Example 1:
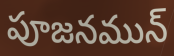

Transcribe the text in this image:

పూజనమున్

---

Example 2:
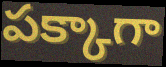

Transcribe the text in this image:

పక్కాగా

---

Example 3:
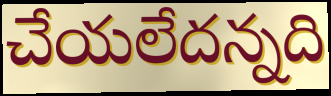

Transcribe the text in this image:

చేయలేదన్నది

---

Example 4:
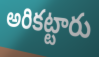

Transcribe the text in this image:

అరికట్టారు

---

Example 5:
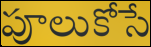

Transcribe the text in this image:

పూలుకోసే